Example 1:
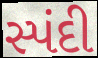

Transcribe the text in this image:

સ્પંદી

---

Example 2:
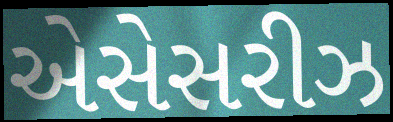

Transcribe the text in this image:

એસેસરીઝ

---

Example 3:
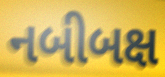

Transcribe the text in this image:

નબીબક્ષ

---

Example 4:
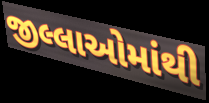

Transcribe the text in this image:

જીલ્લાઓમાંથી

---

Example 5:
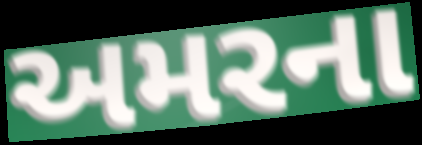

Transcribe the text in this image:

અમરના